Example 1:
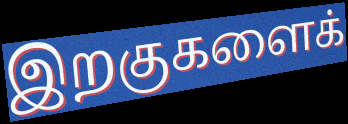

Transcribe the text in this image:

இறகுகளைக்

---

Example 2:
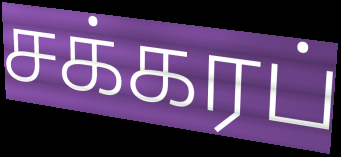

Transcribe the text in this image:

சக்கரப்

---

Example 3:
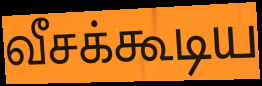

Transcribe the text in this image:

வீசக்கூடிய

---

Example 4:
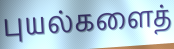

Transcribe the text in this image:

புயல்களைத்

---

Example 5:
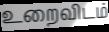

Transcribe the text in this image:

உறைவிடம்